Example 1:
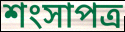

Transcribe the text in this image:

শংসাপত্র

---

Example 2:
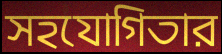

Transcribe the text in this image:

সহযোগিতার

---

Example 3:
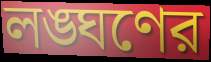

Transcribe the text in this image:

লঙ্ঘণের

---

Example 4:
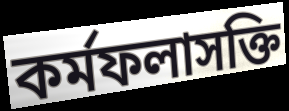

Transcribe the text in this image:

কর্মফলাসক্তি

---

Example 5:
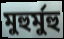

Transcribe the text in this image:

মুহুর্মুহু